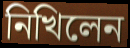
নিখিলেন